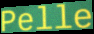
Pelle